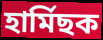
হাৰ্মিছক